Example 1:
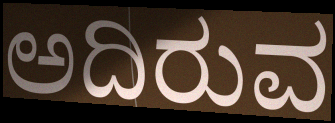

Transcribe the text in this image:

ಅದಿರುವ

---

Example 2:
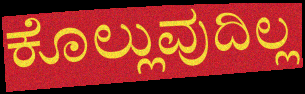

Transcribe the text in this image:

ಕೊಲ್ಲುವುದಿಲ್ಲ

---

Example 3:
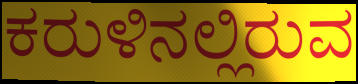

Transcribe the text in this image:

ಕರುಳಿನಲ್ಲಿರುವ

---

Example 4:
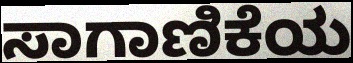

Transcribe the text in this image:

ಸಾಗಾಣಿಕೆಯ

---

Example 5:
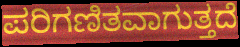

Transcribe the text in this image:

ಪರಿಗಣಿತವಾಗುತ್ತದೆ